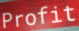
Profit